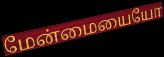
மேன்மையையோ